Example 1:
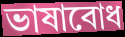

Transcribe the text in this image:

ভাষাবোধ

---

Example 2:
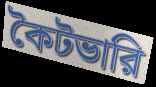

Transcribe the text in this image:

কৈটভারি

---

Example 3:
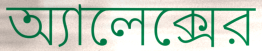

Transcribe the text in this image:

অ্যালেক্সের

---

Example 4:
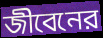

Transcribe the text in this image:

জীবেনের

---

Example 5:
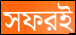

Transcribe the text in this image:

সফরই